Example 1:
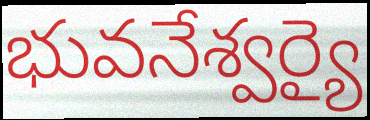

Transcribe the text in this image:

భువనేశ్వర్యై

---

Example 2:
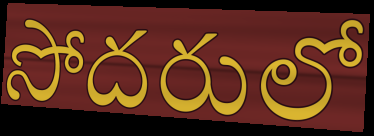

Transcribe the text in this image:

సోదరులో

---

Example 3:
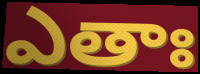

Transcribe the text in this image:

ఎతాః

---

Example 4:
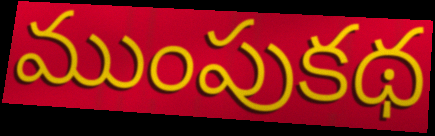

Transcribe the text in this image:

ముంపుకథ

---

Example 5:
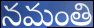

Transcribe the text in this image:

నమంతి